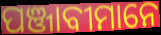
ପଞ୍ଜାବୀମାନେ